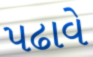
પઢાવે